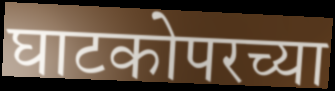
घाटकोपरच्या